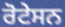
ਰੋਟੇਸਨ